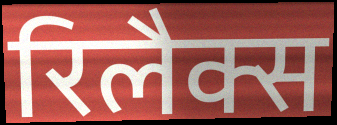
रिलैक्स